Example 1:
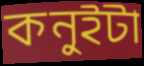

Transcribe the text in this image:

কনুইটা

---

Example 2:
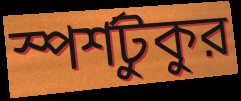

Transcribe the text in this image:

স্পর্শটুকুর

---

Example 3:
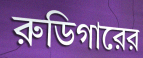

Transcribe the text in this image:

রুডিগারের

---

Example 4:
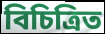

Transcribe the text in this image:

বিচিত্রিত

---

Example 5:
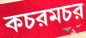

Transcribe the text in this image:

কচরমচর